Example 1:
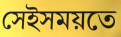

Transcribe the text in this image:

সেইসময়তে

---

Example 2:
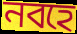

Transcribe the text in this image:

নবহে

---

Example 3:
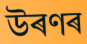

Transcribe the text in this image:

উৰণৰ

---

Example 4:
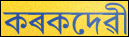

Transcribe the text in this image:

কৰকদেৱী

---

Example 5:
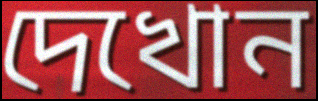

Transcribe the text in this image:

দেখোন